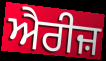
ਐਰੀਜ਼